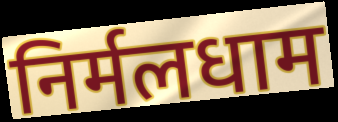
निर्मलधाम